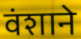
वंशाने